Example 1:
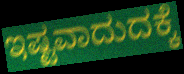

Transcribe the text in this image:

ಇಷ್ಟವಾದುದಕ್ಕೆ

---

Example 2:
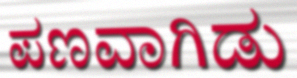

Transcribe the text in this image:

ಪಣವಾಗಿಡು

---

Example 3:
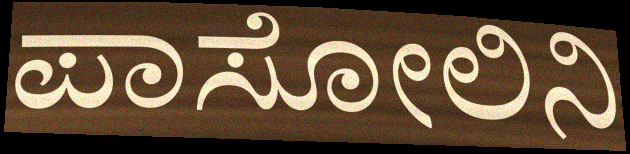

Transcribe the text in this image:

ಪಾಸೋಲಿನಿ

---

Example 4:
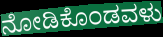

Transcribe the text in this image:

ನೋಡಿಕೊಂಡವಳು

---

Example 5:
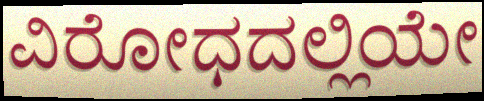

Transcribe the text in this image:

ವಿರೋಧದಲ್ಲಿಯೇ